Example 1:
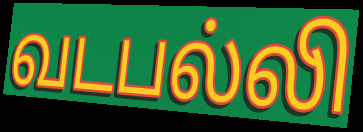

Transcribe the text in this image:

வடபல்லி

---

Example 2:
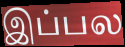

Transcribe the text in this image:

இப்பல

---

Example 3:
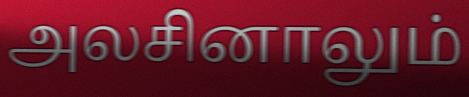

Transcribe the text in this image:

அலசினாலும்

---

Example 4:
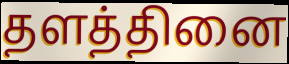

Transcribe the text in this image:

தளத்தினை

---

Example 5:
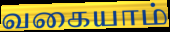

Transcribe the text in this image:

வகையாம்